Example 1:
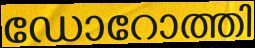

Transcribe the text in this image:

ഡോറോത്തി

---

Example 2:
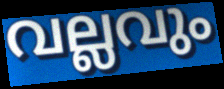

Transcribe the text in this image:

വല്ലവും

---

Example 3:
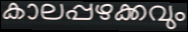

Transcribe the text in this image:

കാലപ്പഴക്കവും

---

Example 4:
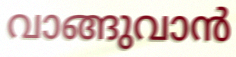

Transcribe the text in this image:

വാങ്ങുവാൻ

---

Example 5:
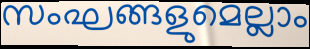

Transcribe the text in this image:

സംഘങ്ങളുമെല്ലാം